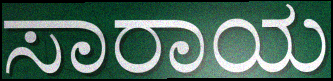
ಸಾರಾಯ